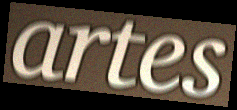
artes